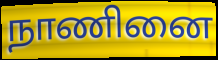
நாணினை